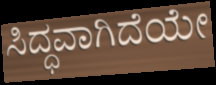
ಸಿದ್ಧವಾಗಿದೆಯೇ